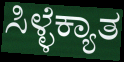
ಸಿಳ್ಳೆಕ್ಯಾತ